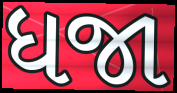
ધજા